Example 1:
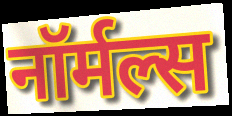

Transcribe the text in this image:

नॉर्मल्स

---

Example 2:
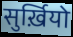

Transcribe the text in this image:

सुर्ख़ियो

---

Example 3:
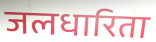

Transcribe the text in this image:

जलधारिता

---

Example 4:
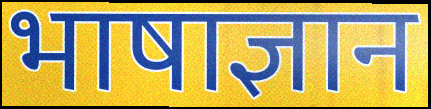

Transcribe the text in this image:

भाषाज्ञान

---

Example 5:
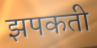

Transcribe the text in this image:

झपकती